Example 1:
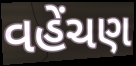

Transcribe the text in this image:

વહેંચણ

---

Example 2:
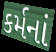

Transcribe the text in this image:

કર્મનાં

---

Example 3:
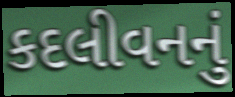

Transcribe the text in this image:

કદલીવનનું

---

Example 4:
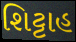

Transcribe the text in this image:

શિટ્ટાહ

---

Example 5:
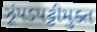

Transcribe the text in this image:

ઝૂંપડપટ્ટીમુક્ત